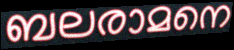
ബലരാമനെ